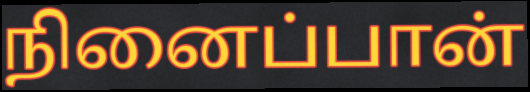
நினைப்பான்